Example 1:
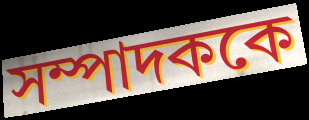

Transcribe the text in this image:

সম্পাদককে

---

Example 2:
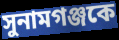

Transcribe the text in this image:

সুনামগঞ্জকে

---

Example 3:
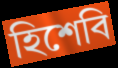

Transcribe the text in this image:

হিশেবি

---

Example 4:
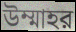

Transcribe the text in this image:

উম্মাহর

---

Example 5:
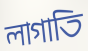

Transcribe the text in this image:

লাগাতি